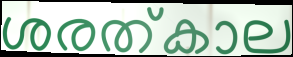
ശരത്കാല